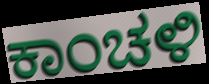
ಕಾಂಚಳಿ